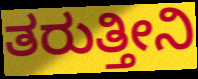
ತರುತ್ತೀನಿ